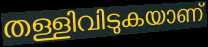
തള്ളിവിടുകയാണ്